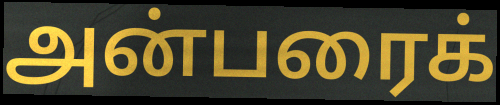
அன்பரைக்